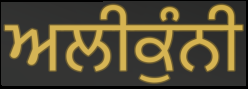
ਅਲੀਕੁੰਨੀ